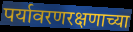
पर्यावरणरक्षणाच्या